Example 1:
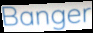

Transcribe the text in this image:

Banger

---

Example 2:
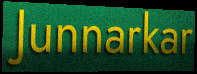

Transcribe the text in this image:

Junnarkar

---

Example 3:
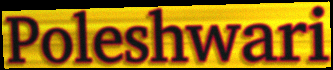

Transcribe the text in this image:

Poleshwari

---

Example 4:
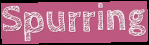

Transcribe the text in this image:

Spurring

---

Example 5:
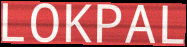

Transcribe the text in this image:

LOKPAL